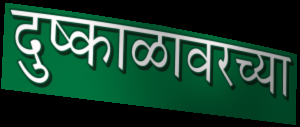
दुष्काळावरच्या